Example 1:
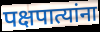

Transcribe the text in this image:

पक्षपात्यांना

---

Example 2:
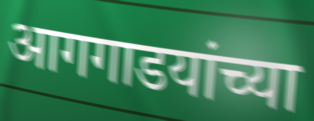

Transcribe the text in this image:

आगगाडयांच्या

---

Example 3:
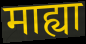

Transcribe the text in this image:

माह्या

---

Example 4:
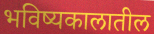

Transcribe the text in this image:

भविष्यकालातील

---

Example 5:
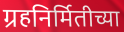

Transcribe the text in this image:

ग्रहनिर्मितीच्या